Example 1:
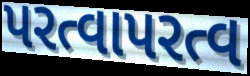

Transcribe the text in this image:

પરત્વાપરત્વ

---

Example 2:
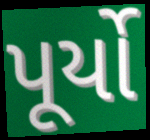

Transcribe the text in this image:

પૂર્યો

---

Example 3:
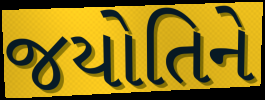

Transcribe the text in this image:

જયોતિને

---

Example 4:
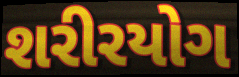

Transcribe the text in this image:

શરીરયોગ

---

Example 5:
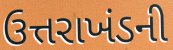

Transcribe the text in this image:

ઉત્તરાખંડની